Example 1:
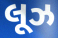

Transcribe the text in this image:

લૂઝ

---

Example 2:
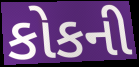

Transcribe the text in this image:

કોકની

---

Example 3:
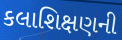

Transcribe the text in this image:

કલાશિક્ષણની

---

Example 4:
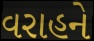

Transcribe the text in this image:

વરાહને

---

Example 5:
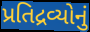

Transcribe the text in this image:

પ્રતિદ્રવ્યોનું